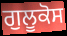
ਗੁਲੂਕੋਸ